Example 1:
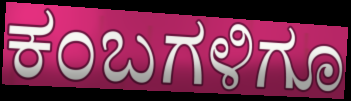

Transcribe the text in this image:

ಕಂಬಗಳಿಗೂ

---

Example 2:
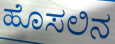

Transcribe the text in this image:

ಹೊಸಲಿನ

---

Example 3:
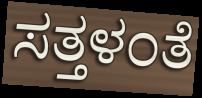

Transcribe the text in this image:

ಸತ್ತಳಂತೆ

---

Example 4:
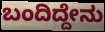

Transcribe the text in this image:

ಬಂದಿದ್ದೇನು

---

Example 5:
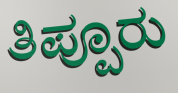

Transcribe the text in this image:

ತಿಪ್ಪೂರು